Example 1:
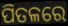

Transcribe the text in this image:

ପିତଳରେ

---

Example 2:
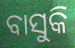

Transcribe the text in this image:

ବାସୁକି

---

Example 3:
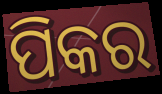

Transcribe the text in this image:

ପିକର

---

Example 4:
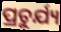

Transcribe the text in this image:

ପ୍ରଚୁର୍ଯ୍ୟ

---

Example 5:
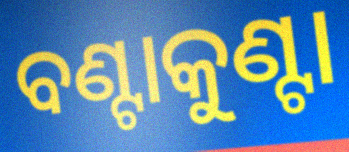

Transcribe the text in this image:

ବଣ୍ଟାକୁଣ୍ଟା